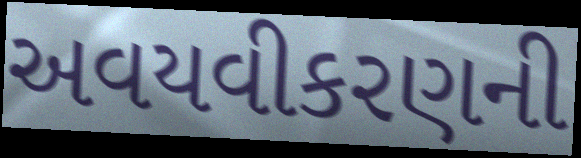
અવયવીકરણની